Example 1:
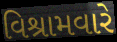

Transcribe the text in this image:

વિશ્રામવારે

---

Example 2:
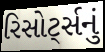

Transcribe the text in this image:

રિસોર્ટ્સનું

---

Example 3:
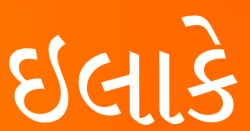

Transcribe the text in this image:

ઇલાકે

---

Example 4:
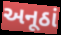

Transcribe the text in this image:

અનૂઠાં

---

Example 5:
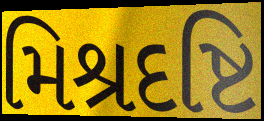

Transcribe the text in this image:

મિશ્રદષ્ટિ